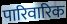
पारिवारिक